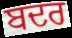
ਬਦਰ